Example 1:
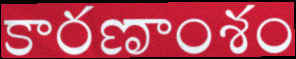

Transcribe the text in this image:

కారణాంశం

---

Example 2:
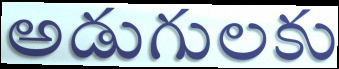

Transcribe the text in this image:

అడుగులకు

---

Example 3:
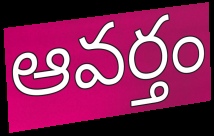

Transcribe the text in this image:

ఆవర్తం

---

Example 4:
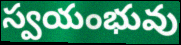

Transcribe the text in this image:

స్వయంభువు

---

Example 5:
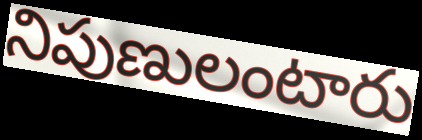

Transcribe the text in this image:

నిపుణులంటారు